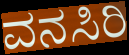
ವನಸಿರಿ